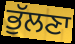
ਭੁੱਲਣਾ